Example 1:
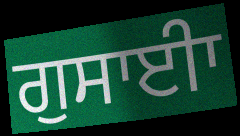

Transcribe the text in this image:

ਗੁਸਾਈਾ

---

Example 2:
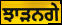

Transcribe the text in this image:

ਝਾੜਨਗੇ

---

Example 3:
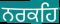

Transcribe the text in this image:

ਨਰਕਹਿ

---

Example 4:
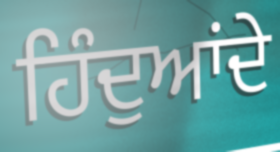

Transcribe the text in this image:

ਹਿੰਦੁਆਂਦੇ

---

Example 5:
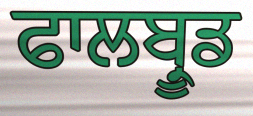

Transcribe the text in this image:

ਫਾਲਬ੍ਰੂਡ